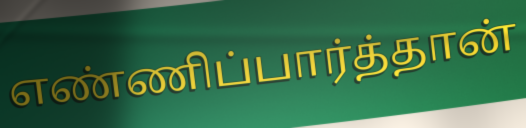
எண்ணிப்பார்த்தான்